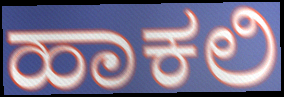
ಹಾಕಲಿ